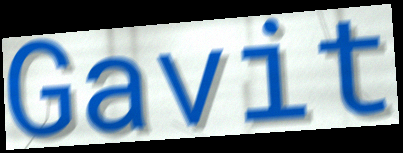
Gavit